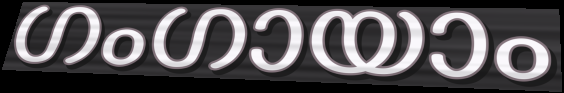
ഗംഗായാം